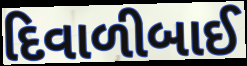
દિવાળીબાઈ